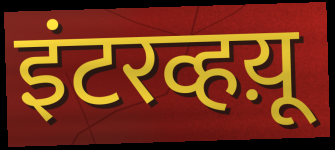
इंटरव्हय़ू